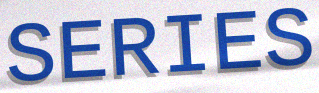
SERIES